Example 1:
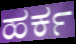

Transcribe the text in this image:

ಹರ್ಕ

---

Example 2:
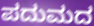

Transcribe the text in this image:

ಪದುಮದ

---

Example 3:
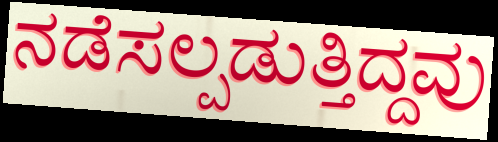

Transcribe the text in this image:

ನಡೆಸಲ್ಪಡುತ್ತಿದ್ದವು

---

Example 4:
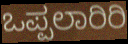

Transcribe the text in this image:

ಒಪ್ಪಲಾರಿರಿ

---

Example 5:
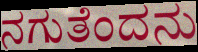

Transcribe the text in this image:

ನಗುತೆಂದನು